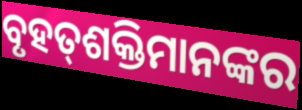
ବୃହତ୍‌ଶକ୍ତିମାନଙ୍କର